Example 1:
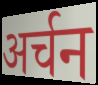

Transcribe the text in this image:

अर्चन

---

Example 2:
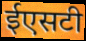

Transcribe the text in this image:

ईएसटी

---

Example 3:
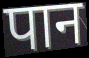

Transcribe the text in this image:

पान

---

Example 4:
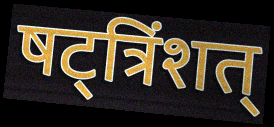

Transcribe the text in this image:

षट्त्रिंशत्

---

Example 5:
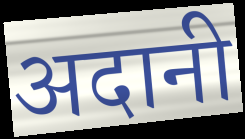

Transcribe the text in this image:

अदानी